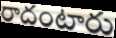
రాదంటారు